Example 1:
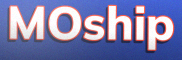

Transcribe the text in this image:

MOship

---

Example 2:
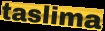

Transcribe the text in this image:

taslima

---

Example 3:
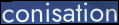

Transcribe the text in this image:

conisation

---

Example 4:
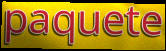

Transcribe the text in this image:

paquete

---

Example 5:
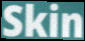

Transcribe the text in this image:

Skin